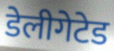
डेलीगेटेड